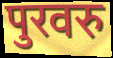
पुरवरु